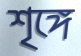
শৃঙ্গে